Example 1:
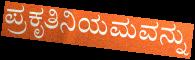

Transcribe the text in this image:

ಪ್ರಕೃತಿನಿಯಮವನ್ನು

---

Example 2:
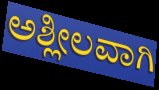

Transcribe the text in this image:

ಅಶ್ಲೀಲವಾಗಿ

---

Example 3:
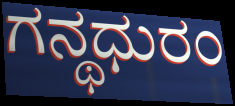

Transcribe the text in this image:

ಗನ್ಥಧುರಂ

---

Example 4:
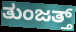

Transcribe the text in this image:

ತುಂಜತ್ತ್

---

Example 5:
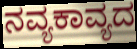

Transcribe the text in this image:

ನವ್ಯಕಾವ್ಯದ